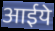
आईये